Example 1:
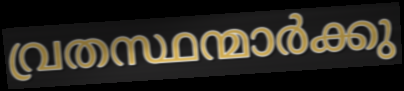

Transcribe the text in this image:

വ്രതസ്ഥന്മാർക്കു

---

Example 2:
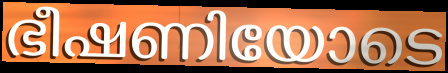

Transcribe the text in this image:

ഭീഷണിയോടെ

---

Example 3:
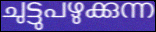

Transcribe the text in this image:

ചുട്ടുപഴുക്കുന്ന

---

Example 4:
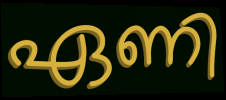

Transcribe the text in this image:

ഏണി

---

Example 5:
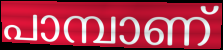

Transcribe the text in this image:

പാമ്പാണ്